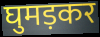
घुमड़कर